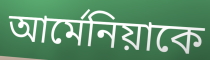
আর্মেনিয়াকে